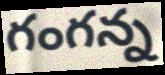
గంగన్న